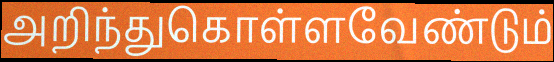
அறிந்துகொள்ளவேண்டும்